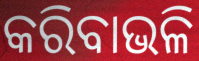
କରିବାଭଳି